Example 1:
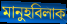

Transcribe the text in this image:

মানুহবিলাক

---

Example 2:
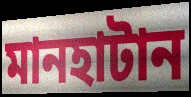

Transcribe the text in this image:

মানহাটান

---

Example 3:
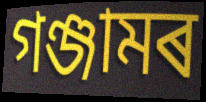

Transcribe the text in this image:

গঞ্জামৰ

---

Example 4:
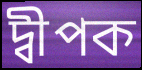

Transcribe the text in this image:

দ্বীপক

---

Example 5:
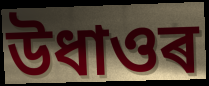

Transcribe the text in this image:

উধাওৰ